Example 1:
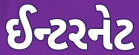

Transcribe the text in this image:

ઈન્ટરનેટ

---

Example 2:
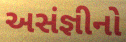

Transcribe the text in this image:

અસંજ્ઞીનો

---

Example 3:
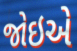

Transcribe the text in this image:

જોઇએ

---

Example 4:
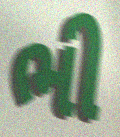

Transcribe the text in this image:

ભી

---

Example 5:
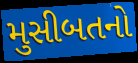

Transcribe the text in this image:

મુસીબતનો